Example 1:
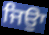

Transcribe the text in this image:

ਜਿਉਾ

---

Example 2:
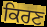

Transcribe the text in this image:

ਕਿਰਣ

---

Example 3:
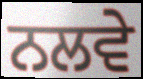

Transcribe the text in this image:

ਨਲਵੇ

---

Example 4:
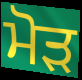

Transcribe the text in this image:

ਮੋਡ਼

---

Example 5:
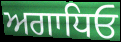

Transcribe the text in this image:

ਅਗਾਧਿਓ